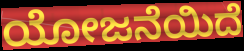
ಯೋಜನೆಯಿದೆ